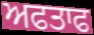
ਅਫਤਾਫ